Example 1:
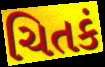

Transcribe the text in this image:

ચિતકં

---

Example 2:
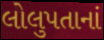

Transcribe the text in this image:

લોલુપતાનાં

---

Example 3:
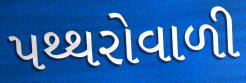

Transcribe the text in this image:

પથ્થરોવાળી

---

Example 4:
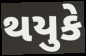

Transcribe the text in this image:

થયુકે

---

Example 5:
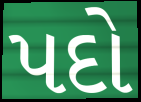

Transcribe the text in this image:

પદો